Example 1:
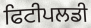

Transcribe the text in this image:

ਫਿਟੀਪਲਡੀ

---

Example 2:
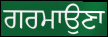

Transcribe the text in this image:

ਗਰਮਾਉਣਾ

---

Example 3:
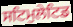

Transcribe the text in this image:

ਸਟਿਮੁਲੇਟਿਡ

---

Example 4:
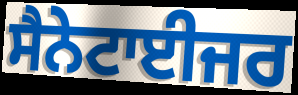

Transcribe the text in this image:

ਸੈਨੇਟਾਈਜਰ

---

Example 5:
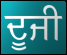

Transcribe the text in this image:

ਦੂਜੀ